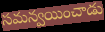
సమన్వయించాడు